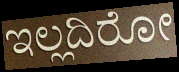
ಇಲ್ಲದಿರೋ